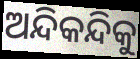
ଅନ୍ଦିକନ୍ଦିକୁ